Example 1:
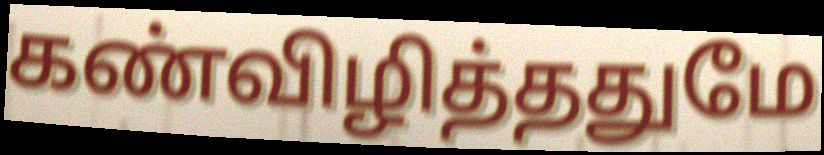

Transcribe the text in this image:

கண்விழித்ததுமே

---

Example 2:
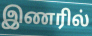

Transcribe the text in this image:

இணரில்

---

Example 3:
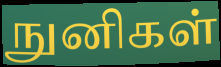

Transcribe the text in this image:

நுனிகள்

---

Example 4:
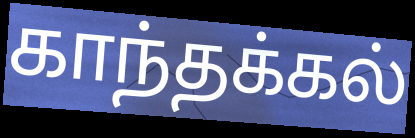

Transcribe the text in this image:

காந்தக்கல்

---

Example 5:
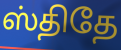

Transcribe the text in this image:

ஸ்திதே